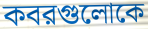
কবরগুলোকে